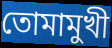
তোমামুখী